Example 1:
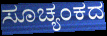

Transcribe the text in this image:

ಸೂಚ್ಯಂಕದ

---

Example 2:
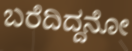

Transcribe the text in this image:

ಬರೆದಿದ್ದನೋ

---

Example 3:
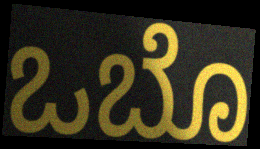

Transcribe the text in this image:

ಒಬೊ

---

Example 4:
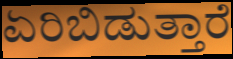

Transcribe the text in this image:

ಏರಿಬಿಡುತ್ತಾರೆ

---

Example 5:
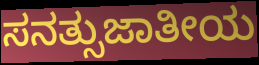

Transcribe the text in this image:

ಸನತ್ಸುಜಾತೀಯ